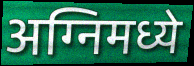
अग्निमध्ये